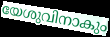
യേശുവിനാകും